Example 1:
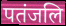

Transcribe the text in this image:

पतंजलि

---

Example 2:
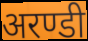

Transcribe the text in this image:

अरण्डी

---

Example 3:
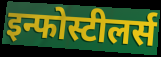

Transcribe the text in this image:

इन्फोस्टीलर्स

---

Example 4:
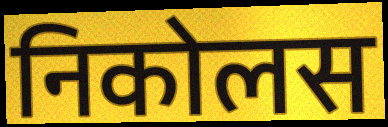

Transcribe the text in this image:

निकोलस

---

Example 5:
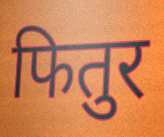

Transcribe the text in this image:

फितुर